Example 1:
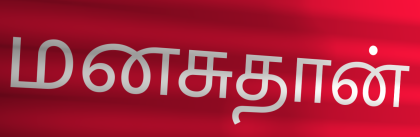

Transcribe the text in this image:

மனசுதான்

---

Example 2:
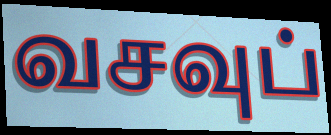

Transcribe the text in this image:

வசவுப்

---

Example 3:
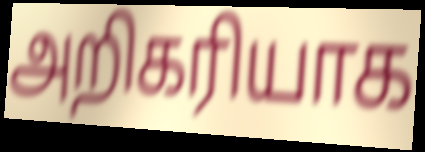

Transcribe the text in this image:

அறிகரியாக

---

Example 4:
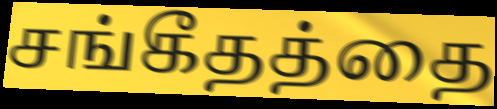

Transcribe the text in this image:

சங்கீதத்தை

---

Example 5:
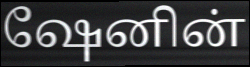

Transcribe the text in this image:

ஷேனின்